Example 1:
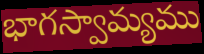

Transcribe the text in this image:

భాగస్వామ్యము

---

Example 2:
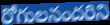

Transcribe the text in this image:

రోగులనందరిని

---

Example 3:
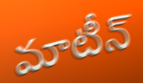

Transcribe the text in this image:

మాటీన్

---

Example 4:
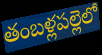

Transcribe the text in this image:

తంబళ్లపల్లెలో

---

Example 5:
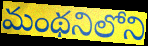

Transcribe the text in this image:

మంథనిలోని